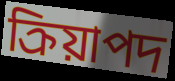
ক্রিয়াপদ